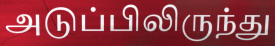
அடுப்பிலிருந்து